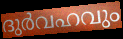
ദുർവഹവും